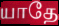
யாதே